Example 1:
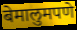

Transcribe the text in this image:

बेमालुमपणे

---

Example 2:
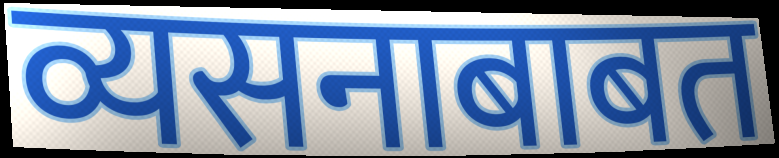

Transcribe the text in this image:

व्यसनाबाबत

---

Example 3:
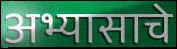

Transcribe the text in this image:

अभ्यासाचे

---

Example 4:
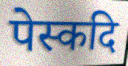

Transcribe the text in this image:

पेस्कदि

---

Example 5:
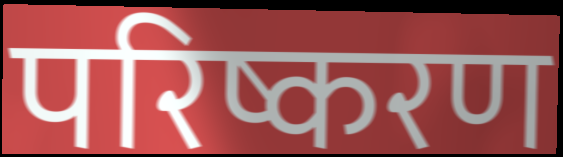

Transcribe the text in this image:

परिष्करण